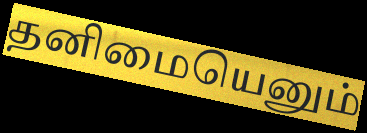
தனிமையெனும்